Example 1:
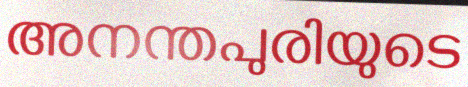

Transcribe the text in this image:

അനന്തപുരിയുടെ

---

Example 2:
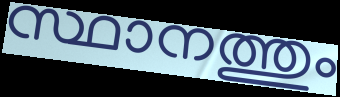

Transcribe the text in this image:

സ്ഥാനത്തും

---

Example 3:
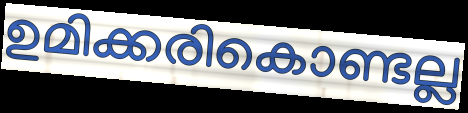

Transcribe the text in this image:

ഉമിക്കരികൊണ്ടല്ല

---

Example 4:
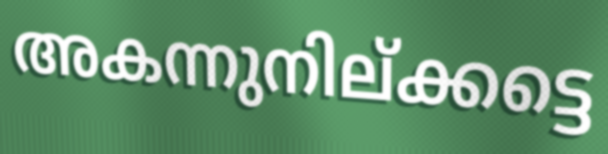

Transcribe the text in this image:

അകന്നുനില്ക്കട്ടെ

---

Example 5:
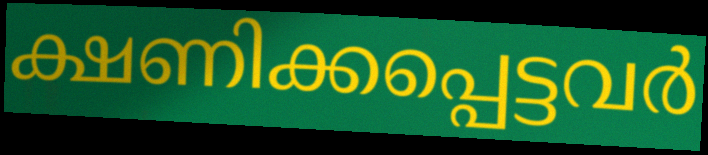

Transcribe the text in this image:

ക്ഷണിക്കപ്പെട്ടവർ